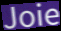
Joie